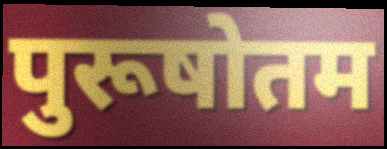
पुरूषोतम